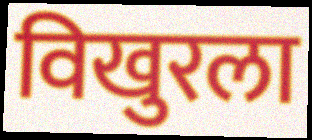
विखुरला